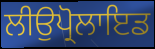
ਲੀਉਪ੍ਰੋਲਾਇਡ